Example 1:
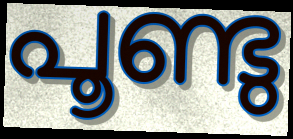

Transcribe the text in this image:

പൂണ്ടു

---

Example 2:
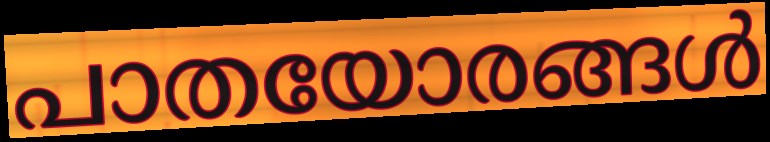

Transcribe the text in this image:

പാതയോരങ്ങൾ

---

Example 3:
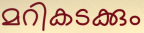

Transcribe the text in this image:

മറികടക്കും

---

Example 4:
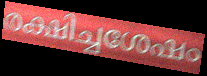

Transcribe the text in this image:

രക്ഷിച്ചശേഷം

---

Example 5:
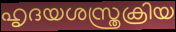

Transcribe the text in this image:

ഹൃദയശസ്ത്രക്രിയ